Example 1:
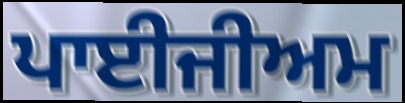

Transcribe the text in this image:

ਪਾਈਜੀਅਮ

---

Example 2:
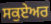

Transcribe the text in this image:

ਸਕੁਏਅਰ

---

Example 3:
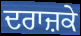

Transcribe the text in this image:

ਦਰਾਜ਼ਕੇ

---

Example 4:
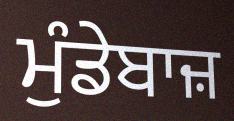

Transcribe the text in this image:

ਮੁੰਡੇਬਾਜ਼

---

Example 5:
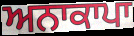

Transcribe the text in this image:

ਅਨਾਕਾਪਾ